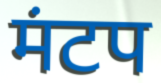
मंटप